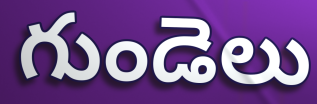
గుండెలు